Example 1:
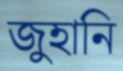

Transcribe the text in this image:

জুহানি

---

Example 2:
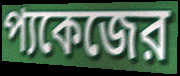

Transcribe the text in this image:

প্যকেজের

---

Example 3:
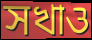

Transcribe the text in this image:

সখাও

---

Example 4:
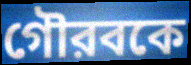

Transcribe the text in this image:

গৌরবকে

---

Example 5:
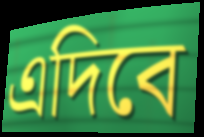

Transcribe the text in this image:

এদিবে